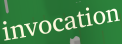
invocation